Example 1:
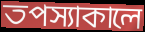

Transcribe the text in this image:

তপস্যাকালে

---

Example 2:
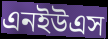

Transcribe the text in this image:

এনইউএস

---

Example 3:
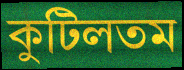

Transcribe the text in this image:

কুটিলতম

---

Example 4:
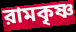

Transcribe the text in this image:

রামকৃষ্ণ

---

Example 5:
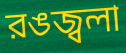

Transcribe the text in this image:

রঙজ্বলা